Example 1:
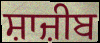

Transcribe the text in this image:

ਸ਼ਾਜ਼ੀਬ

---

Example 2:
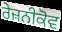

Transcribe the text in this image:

ਰੇਜ਼ਨੀਕੋਵ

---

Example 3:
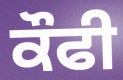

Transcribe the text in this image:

ਕੌਫੀ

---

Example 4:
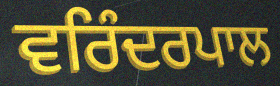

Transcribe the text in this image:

ਵਰਿੰਦਰਪਾਲ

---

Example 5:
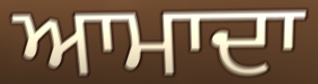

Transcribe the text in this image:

ਆਮਾਦਾ